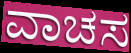
ವಾಚಸ